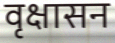
वृक्षासन